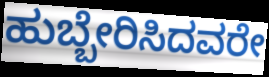
ಹುಬ್ಬೇರಿಸಿದವರೇ